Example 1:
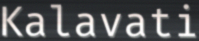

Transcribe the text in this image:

Kalavati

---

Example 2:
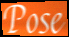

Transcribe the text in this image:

Pose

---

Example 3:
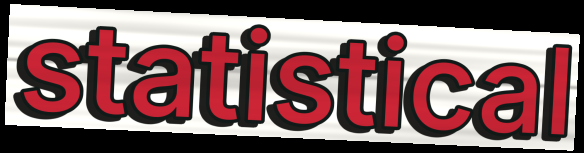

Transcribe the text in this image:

statistical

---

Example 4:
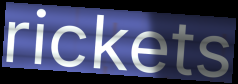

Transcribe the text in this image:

rickets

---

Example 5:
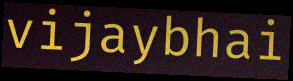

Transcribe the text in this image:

vijaybhai